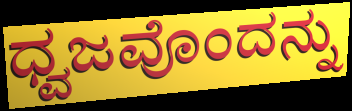
ಧ್ವಜವೊಂದನ್ನು